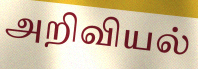
அறிவியல்